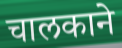
चालकाने